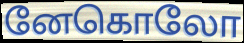
னேகொலோ